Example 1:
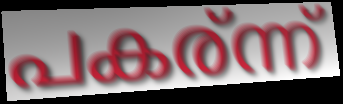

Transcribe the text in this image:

പകര്ന്ന്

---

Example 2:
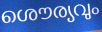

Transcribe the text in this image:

ശൌര്യവും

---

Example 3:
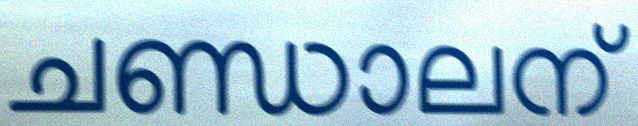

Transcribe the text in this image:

ചണ്ഡാലന്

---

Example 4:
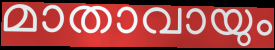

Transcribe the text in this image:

മാതാവായും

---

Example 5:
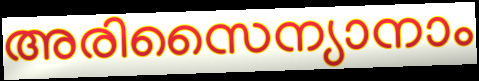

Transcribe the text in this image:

അരിസൈന്യാനാം